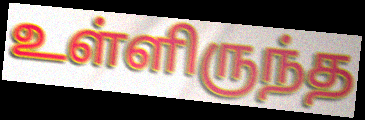
உள்ளிருந்த